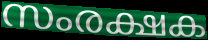
സംരക്ഷക